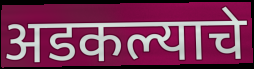
अडकल्याचे